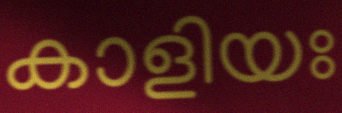
കാളിയഃ